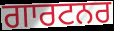
ਗਾਰਟਨਰ